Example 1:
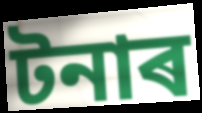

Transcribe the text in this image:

টনাৰ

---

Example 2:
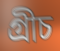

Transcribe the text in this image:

গ্ৰীচ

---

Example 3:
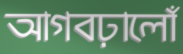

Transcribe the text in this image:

আগবঢ়ালোঁ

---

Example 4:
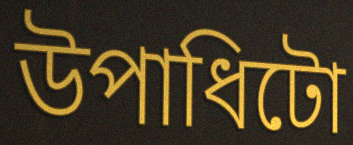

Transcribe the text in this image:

উপাধিটো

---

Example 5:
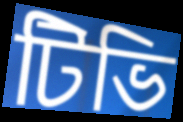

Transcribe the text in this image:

টিভি